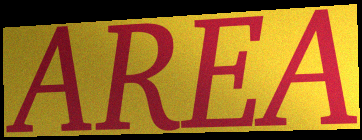
AREA